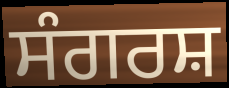
ਸੰਗਰਸ਼